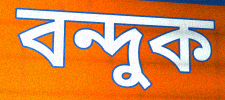
বন্দুক